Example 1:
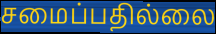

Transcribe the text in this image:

சமைப்பதில்லை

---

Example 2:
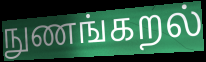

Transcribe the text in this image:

நுணங்கறல்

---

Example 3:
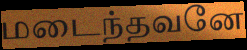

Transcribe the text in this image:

மடைந்தவனே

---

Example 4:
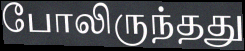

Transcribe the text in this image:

போலிருந்தது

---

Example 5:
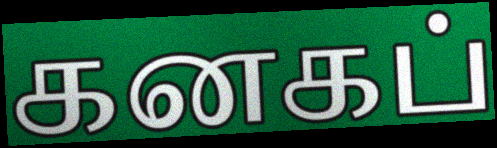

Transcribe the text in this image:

கனகப்